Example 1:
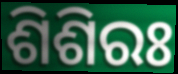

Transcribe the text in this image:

ଶିଶିରଃ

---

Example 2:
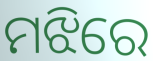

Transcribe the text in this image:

ମଝିରେ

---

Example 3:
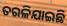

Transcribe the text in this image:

ତରଳିଯାଇଛି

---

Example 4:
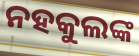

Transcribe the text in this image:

ନହକୁଲଙ୍କ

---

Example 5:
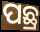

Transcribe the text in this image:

ପଛ୍ର